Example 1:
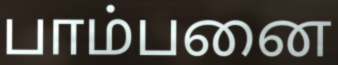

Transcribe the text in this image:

பாம்பனை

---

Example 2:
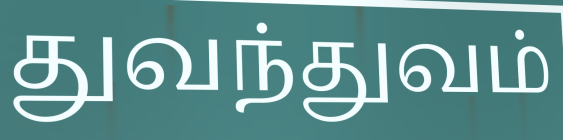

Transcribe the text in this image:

துவந்துவம்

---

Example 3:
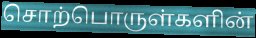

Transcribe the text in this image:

சொற்பொருள்களின்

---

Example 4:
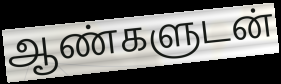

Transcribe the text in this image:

ஆண்களுடன்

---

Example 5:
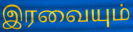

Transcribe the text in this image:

இரவையும்